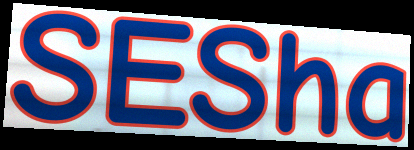
SESha